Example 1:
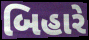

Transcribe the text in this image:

બિહારે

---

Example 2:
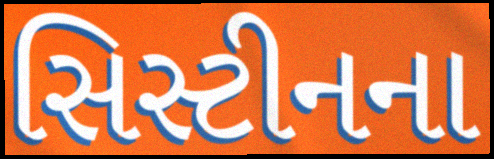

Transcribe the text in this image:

સિસ્ટીનના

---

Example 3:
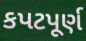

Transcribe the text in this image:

કપટપૂર્ણ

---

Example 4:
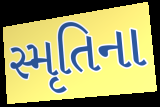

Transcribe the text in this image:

સ્મૃતિના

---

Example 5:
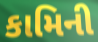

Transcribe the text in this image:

કામિની